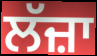
ਲੱਜ਼ਾ